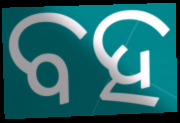
ବହ